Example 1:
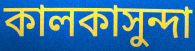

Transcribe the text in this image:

কালকাসুন্দা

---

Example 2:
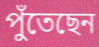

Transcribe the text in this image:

পুঁতেছেন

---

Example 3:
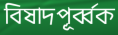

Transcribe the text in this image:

বিষাদপূর্ব্বক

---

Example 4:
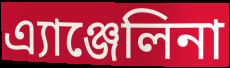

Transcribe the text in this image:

এ্যাঞ্জেলিনা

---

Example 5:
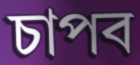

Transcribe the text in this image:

চাপব